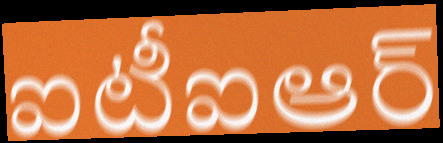
ఐటీఐఆర్